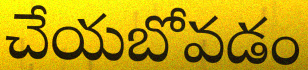
చేయబోవడం